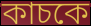
কাচকে